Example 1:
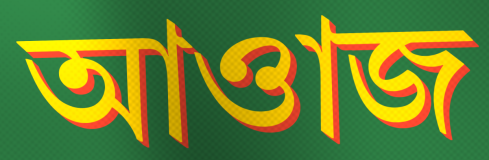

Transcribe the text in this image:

আওাজ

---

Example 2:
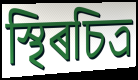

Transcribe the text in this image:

স্থিৰচিত্ৰ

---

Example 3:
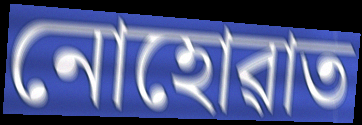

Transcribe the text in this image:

নোহোৱাত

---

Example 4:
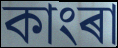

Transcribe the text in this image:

কাংৰা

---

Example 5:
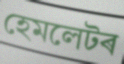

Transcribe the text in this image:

হেমলেটৰ